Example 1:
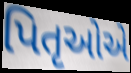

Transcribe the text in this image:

પિતૃઓએ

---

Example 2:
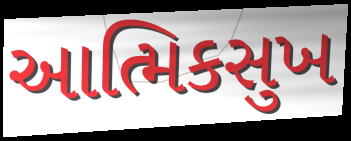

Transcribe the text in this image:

આત્મિકસુખ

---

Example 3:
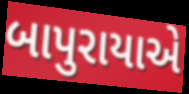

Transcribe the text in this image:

બાપુરાયાએ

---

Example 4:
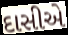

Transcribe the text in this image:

દાસીએ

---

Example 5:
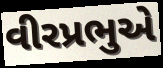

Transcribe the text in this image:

વીરપ્રભુએ